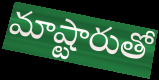
మాష్టారుతో